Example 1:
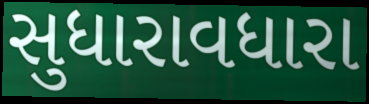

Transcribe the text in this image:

સુધારાવધારા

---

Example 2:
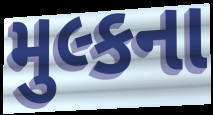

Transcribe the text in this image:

મુલ્કના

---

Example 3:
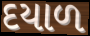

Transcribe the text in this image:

દયાળ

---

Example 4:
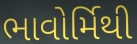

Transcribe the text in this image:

ભાવોર્મિથી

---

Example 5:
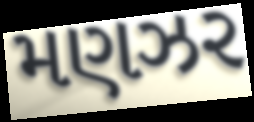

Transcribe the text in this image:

મણઝર